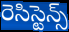
రెసిస్టెన్స్